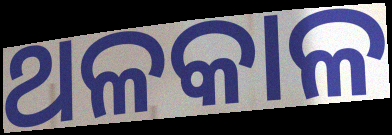
ଥଳକାଳ